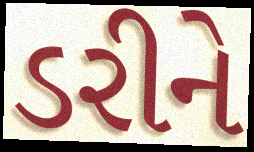
ડરીને